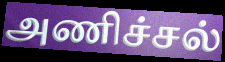
அணிச்சல்